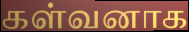
கள்வனாக